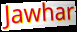
Jawhar